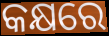
କକ୍ଷରେ